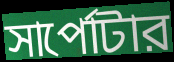
সার্পোটার